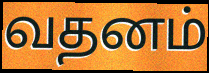
வதனம்